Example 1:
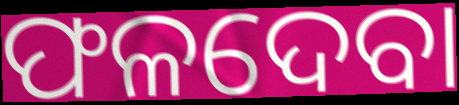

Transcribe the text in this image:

ଫଳଦେବା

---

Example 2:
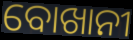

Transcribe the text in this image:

ବୋଖାନୀ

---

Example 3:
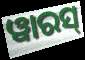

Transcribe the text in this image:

ୱାରସ୍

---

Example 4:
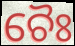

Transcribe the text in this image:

ଚୈଃ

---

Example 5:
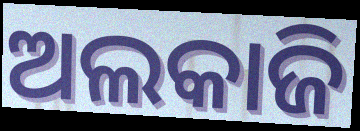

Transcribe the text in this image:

ଅଲକାଜି